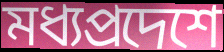
মধ্যপ্রদেশে